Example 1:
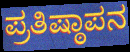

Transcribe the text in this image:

ಪ್ರತಿಷ್ಠಾಪನ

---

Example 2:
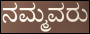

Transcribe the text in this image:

ನಮ್ಮವರು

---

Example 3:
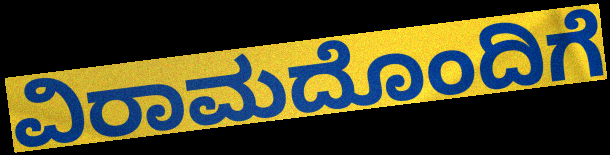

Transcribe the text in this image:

ವಿರಾಮದೊಂದಿಗೆ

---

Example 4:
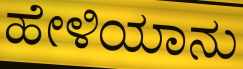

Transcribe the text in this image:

ಹೇಳಿಯಾನು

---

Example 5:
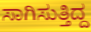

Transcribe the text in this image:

ಸಾಗಿಸುತ್ತಿದ್ದ